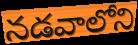
నడవాలోని